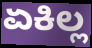
ಏಕಿಲ್ಲ